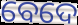
ବେଦେ